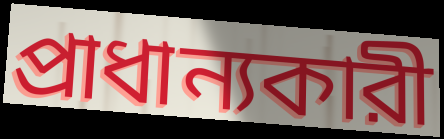
প্রাধান্যকারী